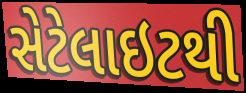
સેટેલાઇટથી